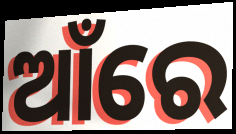
ଆଁରେ